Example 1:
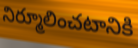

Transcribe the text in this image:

నిర్మూలించటానికి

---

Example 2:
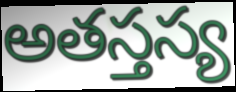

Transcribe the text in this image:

అతస్తస్య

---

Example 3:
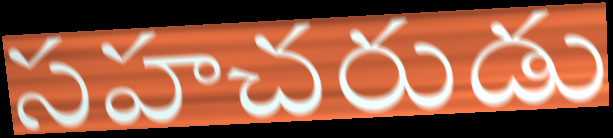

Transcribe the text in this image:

సహచరుడు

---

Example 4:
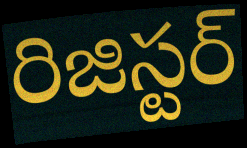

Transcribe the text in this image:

రిజిస్టర్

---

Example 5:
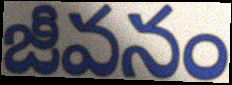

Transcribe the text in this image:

జీవనం